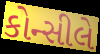
કોન્સીલે